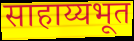
साहाय्यभूत